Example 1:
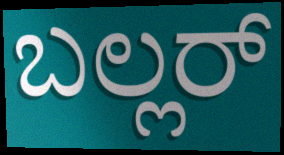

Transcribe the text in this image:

ಬಲ್ಲರ್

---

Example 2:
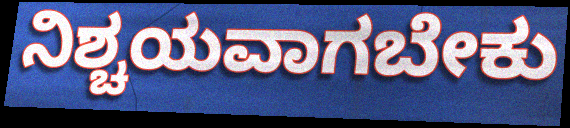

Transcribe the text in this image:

ನಿಶ್ಚಯವಾಗಬೇಕು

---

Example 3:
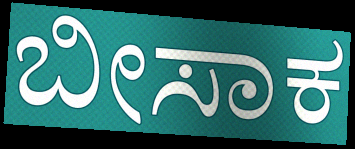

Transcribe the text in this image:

ಬೀಸಾಕ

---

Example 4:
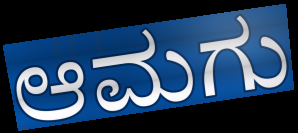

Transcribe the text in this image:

ಆಮಗು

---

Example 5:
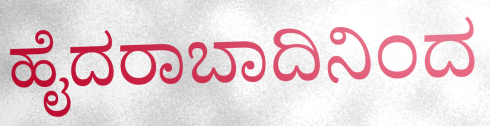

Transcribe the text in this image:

ಹೈದರಾಬಾದಿನಿಂದ